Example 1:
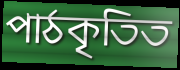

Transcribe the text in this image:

পাঠকৃতিত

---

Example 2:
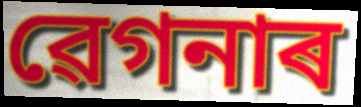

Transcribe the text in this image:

ৱেগনাৰ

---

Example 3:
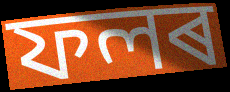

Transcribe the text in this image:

ফলৰ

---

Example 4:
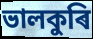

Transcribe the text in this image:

ভালকুৰি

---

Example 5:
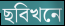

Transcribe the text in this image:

ছবিখনে